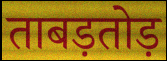
ताबड़तोड़